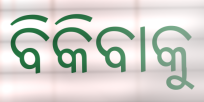
ବିକିବାକୁ